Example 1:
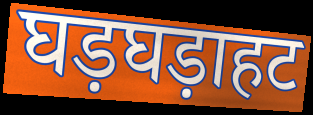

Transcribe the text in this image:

घड़घड़ाहट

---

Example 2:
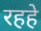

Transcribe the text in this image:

रहहे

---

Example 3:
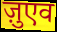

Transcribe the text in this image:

ज़ुएव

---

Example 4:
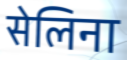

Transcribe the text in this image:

सेलिना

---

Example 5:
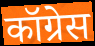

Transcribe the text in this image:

कॉग्रेस